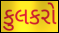
કુલકરો